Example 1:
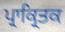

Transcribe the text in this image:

ਪ੍ਰਾਕ੍ਰਿਤਕ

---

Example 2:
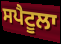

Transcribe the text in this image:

ਸਪੈਟੂਲਾ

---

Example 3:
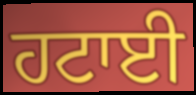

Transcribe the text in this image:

ਹਟਾਈ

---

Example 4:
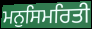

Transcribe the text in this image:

ਮਨੁਸਿਮਰਿਤੀ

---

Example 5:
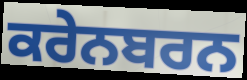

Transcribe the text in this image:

ਕਰੇਨਬਰਨ